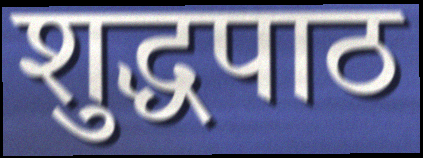
शुद्धपाठ